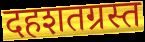
दहशतग्रस्त